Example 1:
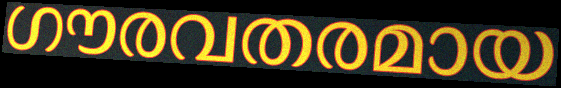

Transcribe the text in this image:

ഗൗരവതരമായ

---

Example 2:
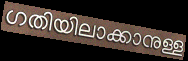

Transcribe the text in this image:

ഗതിയിലാക്കാനുള്ള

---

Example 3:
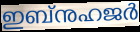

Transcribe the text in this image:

ഇബ്നുഹജർ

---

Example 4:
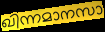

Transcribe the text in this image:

ഖിന്നമാനസാ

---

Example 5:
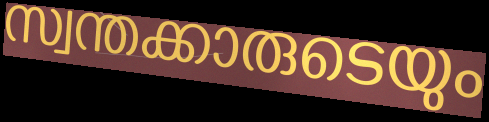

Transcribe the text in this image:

സ്വന്തക്കാരുടെയും